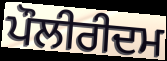
ਪੌਲੀਰੀਦਮ